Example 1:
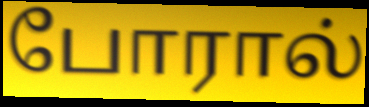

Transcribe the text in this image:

போரால்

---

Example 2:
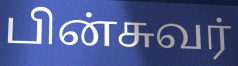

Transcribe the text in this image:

பின்சுவர்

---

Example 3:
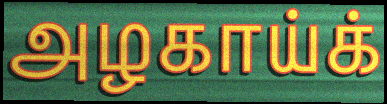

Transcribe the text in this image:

அழகாய்க்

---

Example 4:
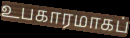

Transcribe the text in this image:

உபகாரமாகப்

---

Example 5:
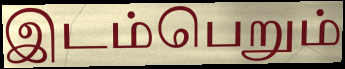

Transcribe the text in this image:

இடம்பெறும்